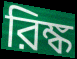
রিঙ্ক